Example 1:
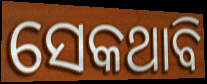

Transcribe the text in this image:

ସେକଥାବି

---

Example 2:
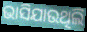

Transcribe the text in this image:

ଭାସିଯାଉଥିଲି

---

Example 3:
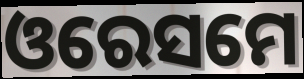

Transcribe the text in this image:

ଓରେସମେ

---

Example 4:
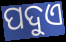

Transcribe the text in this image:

ପଦୁଏ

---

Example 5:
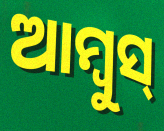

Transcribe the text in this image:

ଆମ୍ବୁସ୍